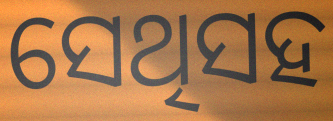
ସେଥିସହ